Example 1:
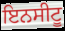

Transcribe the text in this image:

ਇਨਸੀਟੂ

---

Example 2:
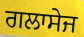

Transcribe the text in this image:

ਗਲਾਸੇਜ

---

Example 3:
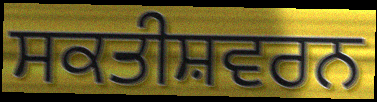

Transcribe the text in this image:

ਸਕਤੀਸ਼ਵਰਨ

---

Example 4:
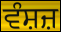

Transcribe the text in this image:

ਵੰਸ਼ਜ਼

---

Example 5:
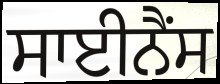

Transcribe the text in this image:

ਸਾਈਨੈਂਸ